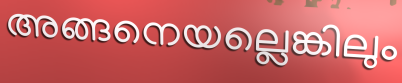
അങ്ങനെയല്ലെങ്കിലും